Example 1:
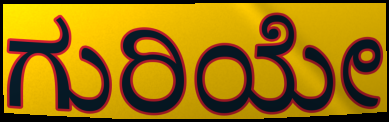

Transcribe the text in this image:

ಗುರಿಯೇ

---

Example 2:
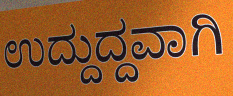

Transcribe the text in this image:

ಉದ್ದುದ್ದವಾಗಿ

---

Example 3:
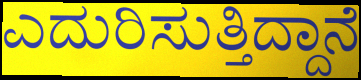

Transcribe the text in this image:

ಎದುರಿಸುತ್ತಿದ್ದಾನೆ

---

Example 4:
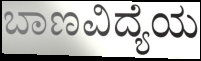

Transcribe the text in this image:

ಬಾಣವಿದ್ಯೆಯ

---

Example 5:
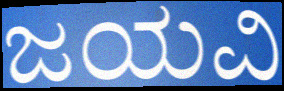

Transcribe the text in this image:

ಜಯವಿ